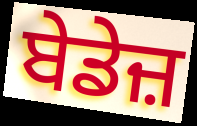
ਬੇਡੇਜ਼